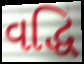
વદ્ધિ